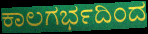
ಕಾಲಗರ್ಭದಿಂದ